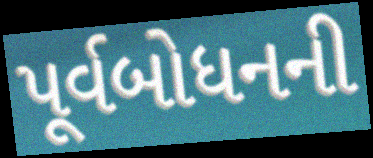
પૂર્વબોધનની